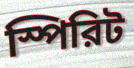
স্পিরিট